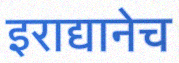
इराद्यानेच